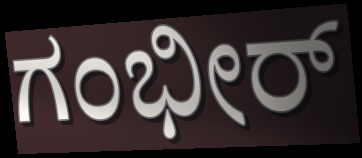
ಗಂಭೀರ್